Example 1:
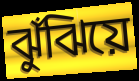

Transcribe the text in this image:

ঝুঁঝিয়ে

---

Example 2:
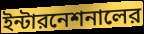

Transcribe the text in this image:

ইন্টারনেশনালের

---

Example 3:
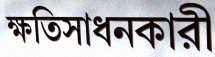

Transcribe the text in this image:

ক্ষতিসাধনকারী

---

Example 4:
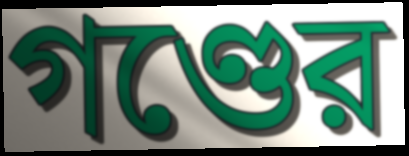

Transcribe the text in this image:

গণ্ডের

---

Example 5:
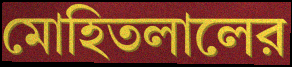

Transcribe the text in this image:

মোহিতলালের